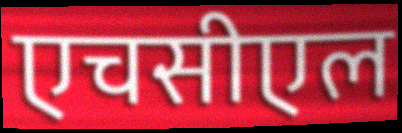
एचसीएल